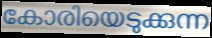
കോരിയെടുക്കുന്ന